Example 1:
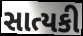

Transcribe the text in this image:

સાત્યકી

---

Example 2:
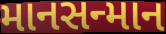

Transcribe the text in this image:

માનસન્માન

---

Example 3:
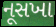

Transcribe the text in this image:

નૂસખા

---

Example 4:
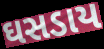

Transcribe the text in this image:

ઘસડાય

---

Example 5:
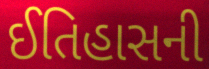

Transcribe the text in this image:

ઈતિહાસની